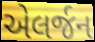
એલર્જન